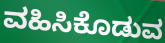
ವಹಿಸಿಕೊಡುವ